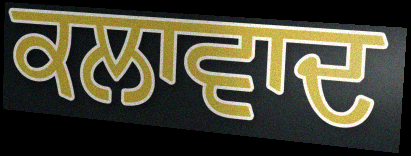
ਕਲਾਵਾਦ